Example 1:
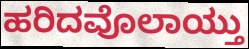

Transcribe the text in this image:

ಹರಿದವೊಲಾಯ್ತು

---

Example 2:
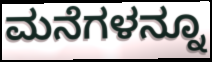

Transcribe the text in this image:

ಮನೆಗಳನ್ನೂ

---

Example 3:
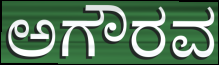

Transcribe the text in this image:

ಅಗೌರವ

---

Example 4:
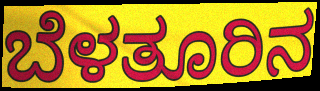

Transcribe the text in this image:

ಬೆಳತೂರಿನ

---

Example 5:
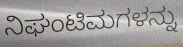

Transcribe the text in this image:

ನಿಘಂಟಿಮಗಳನ್ನು